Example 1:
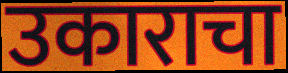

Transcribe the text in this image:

उकाराचा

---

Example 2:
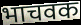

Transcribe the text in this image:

भाचवक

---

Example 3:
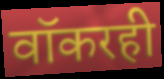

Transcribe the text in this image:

वॉकरही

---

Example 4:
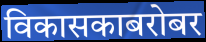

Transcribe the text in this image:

विकासकाबरोबर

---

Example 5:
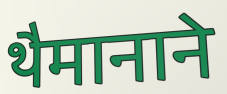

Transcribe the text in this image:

थैमानाने